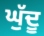
ਘੁੱਦੂ